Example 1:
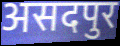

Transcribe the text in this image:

असदपुर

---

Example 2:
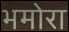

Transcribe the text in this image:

भमोरा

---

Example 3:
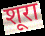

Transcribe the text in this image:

शूरा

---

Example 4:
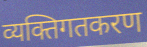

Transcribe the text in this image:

व्यक्तिगतकरण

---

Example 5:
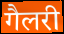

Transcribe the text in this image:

गैलरी